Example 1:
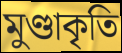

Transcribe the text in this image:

মুণ্ডাকৃতি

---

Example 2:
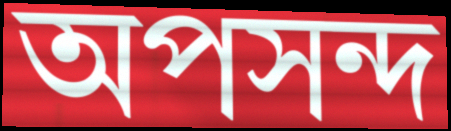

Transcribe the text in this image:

অপসন্দ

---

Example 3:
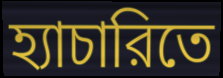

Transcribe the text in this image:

হ্যাচারিতে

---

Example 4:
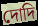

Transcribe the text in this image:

দোদি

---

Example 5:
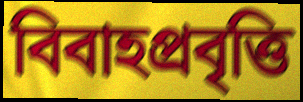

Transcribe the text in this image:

বিবাহপ্রবৃত্তি